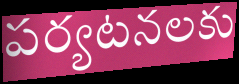
పర్యటనలకు